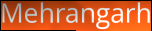
Mehrangarh